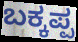
ಬಕ್ಕಪ್ಪ